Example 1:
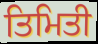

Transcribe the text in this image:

ਤਿਮਿਤੀ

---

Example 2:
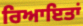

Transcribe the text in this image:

ਰਿਆਇਤਾਂ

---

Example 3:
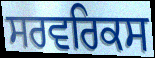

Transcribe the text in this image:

ਸਰਵਰਿਕਸ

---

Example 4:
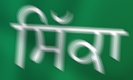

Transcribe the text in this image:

ਸਿੱਕਾ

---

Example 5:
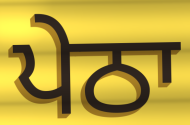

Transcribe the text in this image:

ਪੇਠਾ